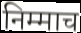
निम्माच